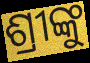
ଶ୍ରୀଙ୍କୁ